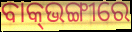
ବାକ୍‍ଭଙ୍ଗୀରେ